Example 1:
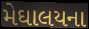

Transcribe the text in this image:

મેઘાલયના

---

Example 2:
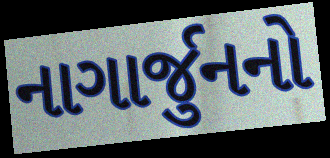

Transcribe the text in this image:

નાગાર્જુનનો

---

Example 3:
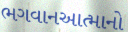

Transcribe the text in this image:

ભગવાનઆત્માનો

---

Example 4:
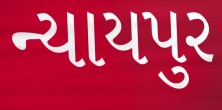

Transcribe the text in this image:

ન્યાયપુર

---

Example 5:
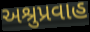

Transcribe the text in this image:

અશ્રુપ્રવાહ